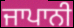
ਜਾਪਾਨੀ